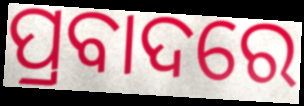
ପ୍ରବାଦରେ